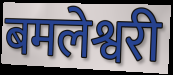
बमलेश्वरी